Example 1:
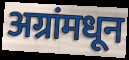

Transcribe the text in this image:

अग्रांमधून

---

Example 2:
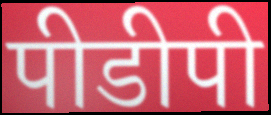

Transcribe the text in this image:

पीडीपी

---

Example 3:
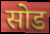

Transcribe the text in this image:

सोड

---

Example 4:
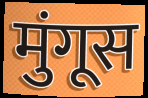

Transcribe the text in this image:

मुंगूस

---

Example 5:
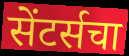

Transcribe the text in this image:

सेंटर्सचा